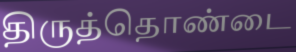
திருத்தொண்டை